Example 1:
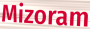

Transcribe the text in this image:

Mizoram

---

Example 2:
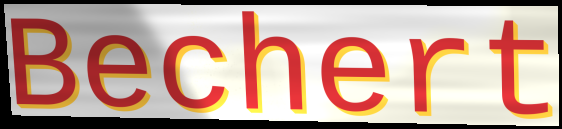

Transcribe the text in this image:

Bechert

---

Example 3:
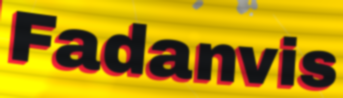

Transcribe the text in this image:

Fadanvis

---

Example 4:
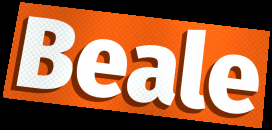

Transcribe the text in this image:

Beale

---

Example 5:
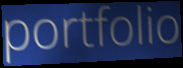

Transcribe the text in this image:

portfolio